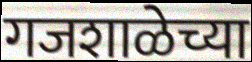
गजशाळेच्या